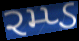
રમ્પ્ડ